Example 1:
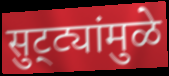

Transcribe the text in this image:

सुट्ट्यांमुळे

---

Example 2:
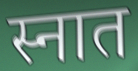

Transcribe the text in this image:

स्नात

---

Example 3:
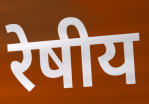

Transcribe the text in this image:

रेषीय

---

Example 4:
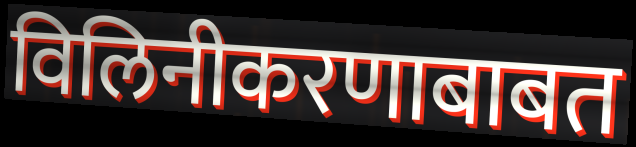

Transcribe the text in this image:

विलिनीकरणाबाबत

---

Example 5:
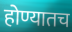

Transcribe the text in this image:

होण्यातच